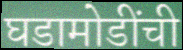
घडामोडींची